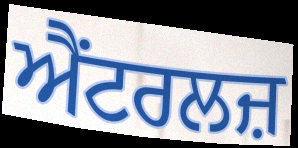
ਐਂਟਰਲਜ਼